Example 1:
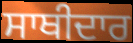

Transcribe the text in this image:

ਸਾਥੀਦਾਰ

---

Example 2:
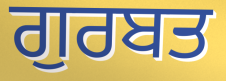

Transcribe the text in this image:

ਗੁਰਬਤ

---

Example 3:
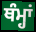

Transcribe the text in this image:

ਥੰਮ੍ਹਾਂ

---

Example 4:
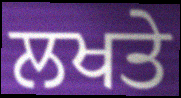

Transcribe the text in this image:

ਲਖਤੇ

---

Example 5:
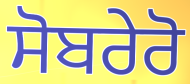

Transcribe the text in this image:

ਸੋਬਰੇਰੋ